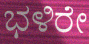
ಭಳಿರೇ